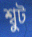
শ্বুট